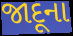
જાદૂના